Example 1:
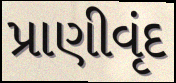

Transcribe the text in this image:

પ્રાણીવૃંદ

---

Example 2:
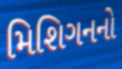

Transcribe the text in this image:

મિશિગનનો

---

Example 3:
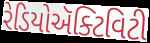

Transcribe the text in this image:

રેડિયોઍક્ટિવિટી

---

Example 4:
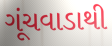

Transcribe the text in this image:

ગૂંચવાડાથી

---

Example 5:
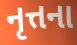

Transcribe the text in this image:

નૃત્તના